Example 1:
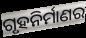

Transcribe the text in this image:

ଗୃହନିର୍ମାଣର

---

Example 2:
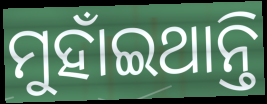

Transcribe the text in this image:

ମୁହାଁଇଥାନ୍ତି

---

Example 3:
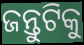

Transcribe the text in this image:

ଜନ୍ତୁଟିକୁ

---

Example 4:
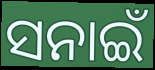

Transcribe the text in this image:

ସନାଇଁ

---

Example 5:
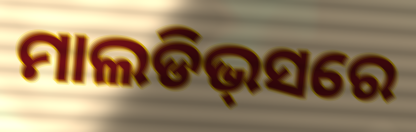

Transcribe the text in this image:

ମାଲଡିଭ୍‌ସରେ